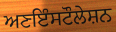
ਅਣਇੰਸਟੌਲੇਸ਼ਨ